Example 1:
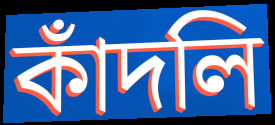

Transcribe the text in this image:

কাঁদলি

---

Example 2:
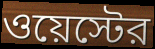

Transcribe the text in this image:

ওয়েস্টের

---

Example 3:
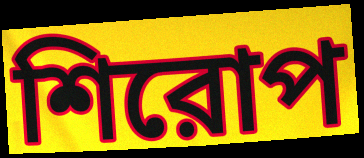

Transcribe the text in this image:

শিরোপ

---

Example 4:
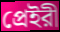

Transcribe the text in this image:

প্রেইরী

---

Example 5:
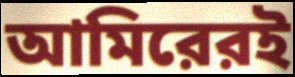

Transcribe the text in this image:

আমিরেরই